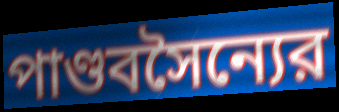
পাণ্ডবসৈন্যের